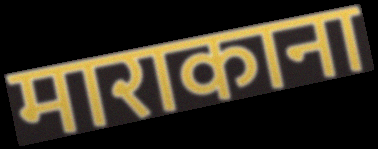
माराकाना